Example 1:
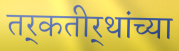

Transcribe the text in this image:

तर्कतीर्थांच्या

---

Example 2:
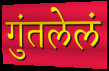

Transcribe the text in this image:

गुंतलेलं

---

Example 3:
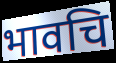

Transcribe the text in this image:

भावचि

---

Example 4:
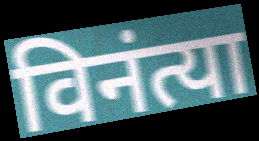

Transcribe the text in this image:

विनंत्या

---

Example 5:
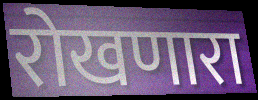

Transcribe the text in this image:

रोखणारा